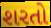
શરતો